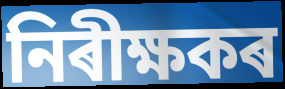
নিৰীক্ষকৰ